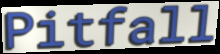
Pitfall